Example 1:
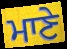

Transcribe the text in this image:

ਮਾਣੇ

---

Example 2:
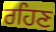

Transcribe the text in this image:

ਰਹਿਣ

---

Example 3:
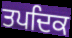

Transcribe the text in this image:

ਤਪਦਿਕ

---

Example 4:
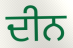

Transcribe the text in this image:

ਦੀਨ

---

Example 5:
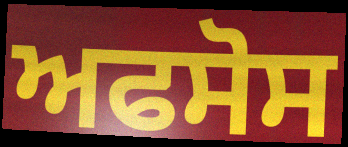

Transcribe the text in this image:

ਅਫਸੋਸ